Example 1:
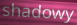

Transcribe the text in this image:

shadowy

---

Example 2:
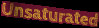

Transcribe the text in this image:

Unsaturated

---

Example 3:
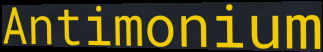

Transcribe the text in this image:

Antimonium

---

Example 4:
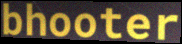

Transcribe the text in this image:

bhooter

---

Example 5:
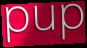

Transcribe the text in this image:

pup